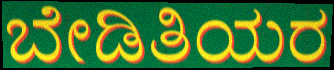
ಬೇಡಿತಿಯರ